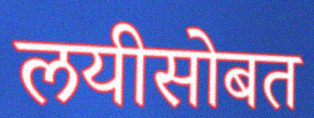
लयीसोबत